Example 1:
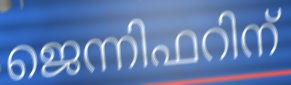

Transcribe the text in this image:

ജെന്നിഫറിന്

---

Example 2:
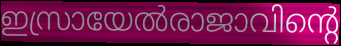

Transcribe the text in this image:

ഇസ്രായേൽരാജാവിന്റെ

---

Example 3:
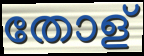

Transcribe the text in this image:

തോള്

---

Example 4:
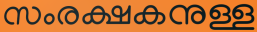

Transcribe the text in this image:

സംരക്ഷകനുള്ള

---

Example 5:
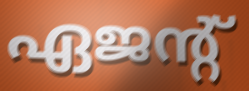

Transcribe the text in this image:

ഏജന്റ്